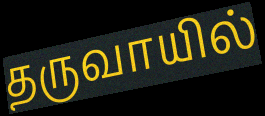
தருவாயில்